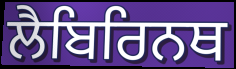
ਲੈਬਿਰਿਨਥ